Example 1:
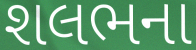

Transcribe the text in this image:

શલભના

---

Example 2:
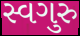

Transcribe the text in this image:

સ્વગુરુ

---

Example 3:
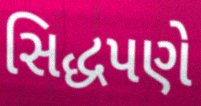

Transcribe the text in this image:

સિદ્ધપણે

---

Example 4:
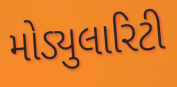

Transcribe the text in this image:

મોડ્યુલારિટી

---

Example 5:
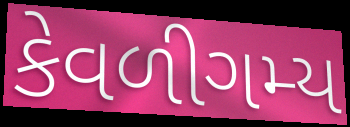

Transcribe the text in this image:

કેવળીગમ્ય